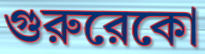
গুরুরেকো